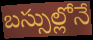
బస్సుల్లోనే